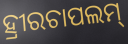
ହ୍ରୀରଚାପଲମ୍